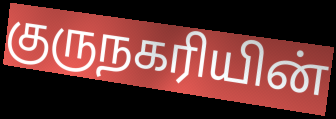
குருநகரியின்